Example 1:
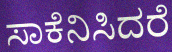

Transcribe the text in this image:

ಸಾಕೆನಿಸಿದರೆ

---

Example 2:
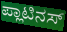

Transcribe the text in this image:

ಪ್ಲಾಟಿನಸ್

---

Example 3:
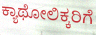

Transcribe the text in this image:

ಕ್ಯಾಥೋಲಿಕ್ಕರಿಗೆ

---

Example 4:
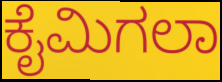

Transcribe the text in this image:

ಕೈಮಿಗಲಾ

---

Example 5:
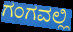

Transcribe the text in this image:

ಗಂಗವಲ್ಲಿ